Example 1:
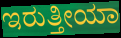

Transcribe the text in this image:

ಇರುತ್ತೀಯಾ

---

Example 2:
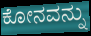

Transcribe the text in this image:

ಕೋನವನ್ನು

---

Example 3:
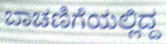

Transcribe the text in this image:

ಬಾಚಣಿಗೆಯಲ್ಲಿದ್ದ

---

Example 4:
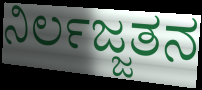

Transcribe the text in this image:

ನಿರ್ಲಜ್ಜತನ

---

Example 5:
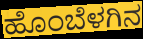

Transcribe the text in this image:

ಹೊಂಬೆಳಗಿನ